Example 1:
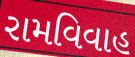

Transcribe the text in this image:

રામવિવાહ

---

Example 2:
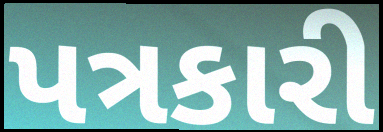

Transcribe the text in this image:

પત્રકારી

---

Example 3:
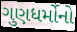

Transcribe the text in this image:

ગુણધર્મોનો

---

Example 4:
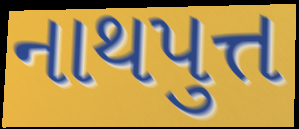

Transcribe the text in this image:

નાથપુત્ત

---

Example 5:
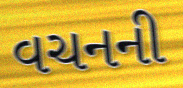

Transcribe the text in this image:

વચનની